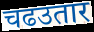
चढउतार